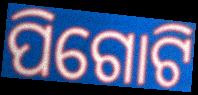
ପିଗୋଟି